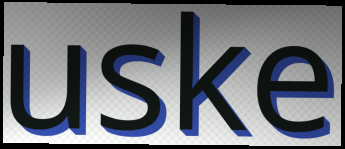
uske